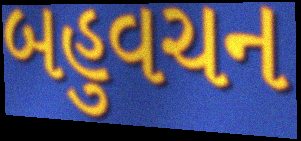
બહુવચન